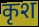
कृश